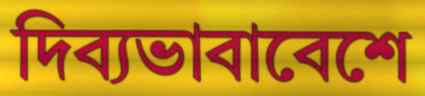
দিব্যভাবাবেশে